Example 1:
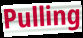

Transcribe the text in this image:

Pulling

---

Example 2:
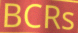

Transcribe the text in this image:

BCRs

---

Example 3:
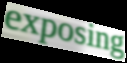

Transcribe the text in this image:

exposing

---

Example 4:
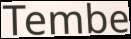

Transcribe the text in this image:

Tembe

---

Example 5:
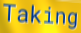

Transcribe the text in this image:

Taking